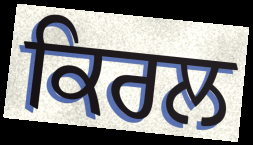
ਕਿਰਲ